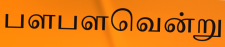
பளபளவென்று